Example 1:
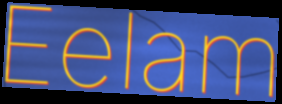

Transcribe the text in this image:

Eelam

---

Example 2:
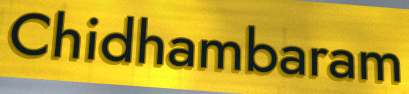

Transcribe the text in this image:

Chidhambaram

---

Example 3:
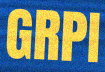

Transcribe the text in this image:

GRPI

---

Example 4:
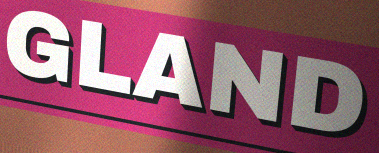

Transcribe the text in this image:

GLAND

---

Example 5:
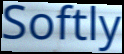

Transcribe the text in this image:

Softly